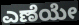
ಎಣೆಯೇ